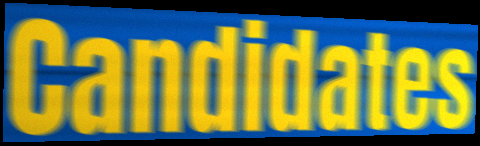
Candidates